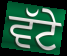
ਵੱਟੇ